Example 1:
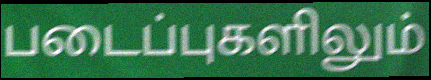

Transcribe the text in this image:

படைப்புகளிலும்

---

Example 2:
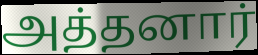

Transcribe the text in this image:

அத்தனார்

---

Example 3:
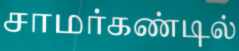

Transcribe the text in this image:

சாமர்கண்டில்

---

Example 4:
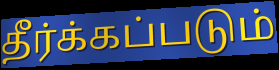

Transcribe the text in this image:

தீர்க்கப்படும்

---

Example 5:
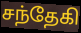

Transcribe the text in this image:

சந்தேகி